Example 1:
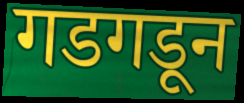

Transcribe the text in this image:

गडगडून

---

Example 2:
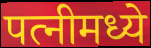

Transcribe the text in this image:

पत्नीमध्ये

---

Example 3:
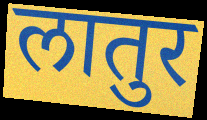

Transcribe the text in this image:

लातुर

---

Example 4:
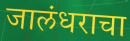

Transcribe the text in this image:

जालंधराचा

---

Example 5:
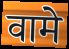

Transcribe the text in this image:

वामे